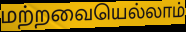
மற்றவையெல்லாம்